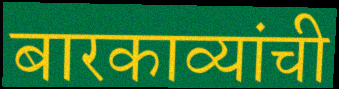
बारकाव्यांची